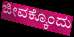
ಜೀವಕ್ಕೊಂದು